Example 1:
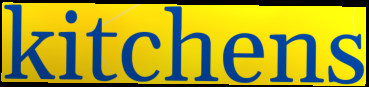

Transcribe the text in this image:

kitchens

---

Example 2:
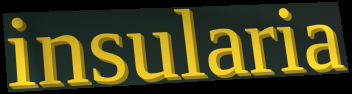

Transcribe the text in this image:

insularia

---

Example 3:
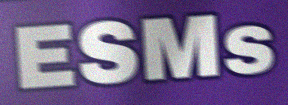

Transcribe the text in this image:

ESMs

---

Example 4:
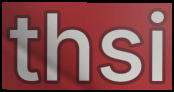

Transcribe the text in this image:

thsi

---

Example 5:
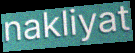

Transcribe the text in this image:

nakliyat